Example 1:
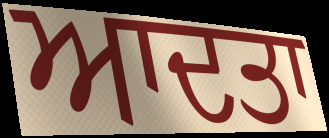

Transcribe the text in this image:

ਆਦਤਾ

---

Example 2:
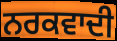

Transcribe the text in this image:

ਨਰਕਵਾਦੀ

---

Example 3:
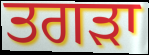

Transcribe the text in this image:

ਤਗੜਾ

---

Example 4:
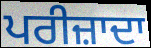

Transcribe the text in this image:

ਪਰੀਜ਼ਾਦਾ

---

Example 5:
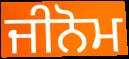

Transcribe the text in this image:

ਜੀਨੋਮ